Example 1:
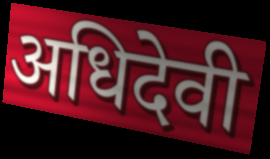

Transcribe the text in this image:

अधिदेवी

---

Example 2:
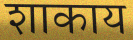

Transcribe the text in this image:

शाकाय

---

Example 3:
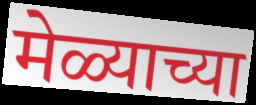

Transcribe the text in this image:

मेळ्याच्या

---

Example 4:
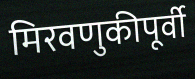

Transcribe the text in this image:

मिरवणुकीपूर्वी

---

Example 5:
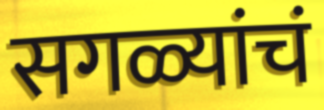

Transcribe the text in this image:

सगळ्यांचं